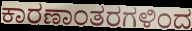
ಕಾರಣಾಂತರಗಳಿಂದ